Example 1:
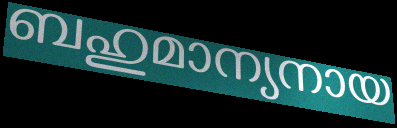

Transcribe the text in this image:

ബഹുമാന്യനായ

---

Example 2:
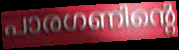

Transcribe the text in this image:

പാരഗണിന്റെ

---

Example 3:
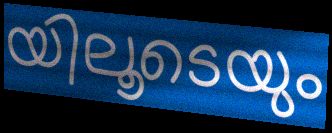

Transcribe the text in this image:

യിലൂടെയും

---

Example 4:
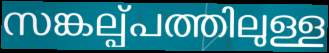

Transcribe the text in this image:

സങ്കല്പ്പത്തിലുള്ള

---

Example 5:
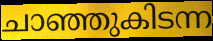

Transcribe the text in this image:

ചാഞ്ഞുകിടന്ന